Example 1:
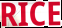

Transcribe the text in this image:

RICE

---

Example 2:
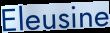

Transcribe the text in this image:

Eleusine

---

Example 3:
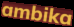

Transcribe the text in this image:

ambika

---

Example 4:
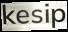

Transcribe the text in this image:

kesip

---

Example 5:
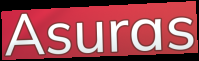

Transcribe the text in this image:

Asuras